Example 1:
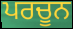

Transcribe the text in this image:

ਪਰਚੂਨ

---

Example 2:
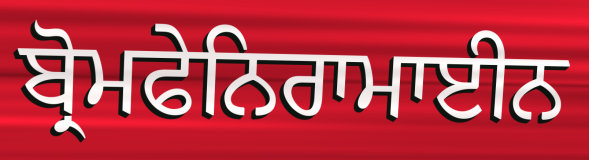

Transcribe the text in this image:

ਬ੍ਰੋਮਫੇਨਿਰਾਮਾਈਨ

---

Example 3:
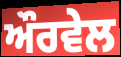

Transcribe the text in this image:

ਔਰਵੇਲ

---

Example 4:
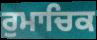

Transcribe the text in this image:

ਰੁਮਾਚਿਕ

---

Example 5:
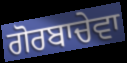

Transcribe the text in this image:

ਗੋਰਬਾਚੇਵਾ